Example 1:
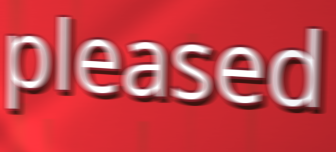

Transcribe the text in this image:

pleased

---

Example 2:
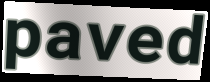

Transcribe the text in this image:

paved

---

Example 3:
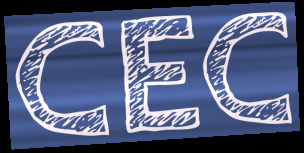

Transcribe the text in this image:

CEC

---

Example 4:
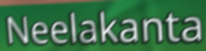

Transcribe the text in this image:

Neelakanta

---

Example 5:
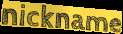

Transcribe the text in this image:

nickname